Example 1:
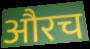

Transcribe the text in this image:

औरच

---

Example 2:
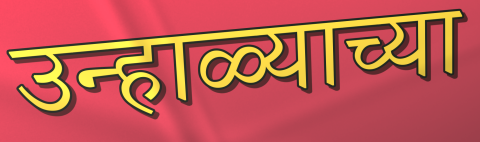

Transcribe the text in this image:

उन्हाळ्याच्या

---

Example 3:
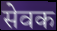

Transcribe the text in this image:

सेवक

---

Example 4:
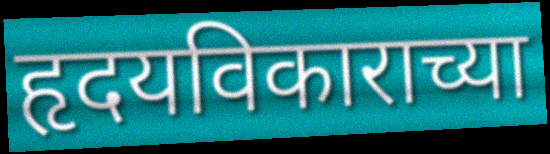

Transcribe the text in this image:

हृदयविकाराच्या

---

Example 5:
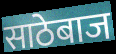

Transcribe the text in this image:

साठेबाज